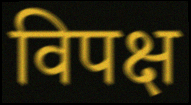
विपक्ष